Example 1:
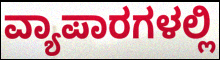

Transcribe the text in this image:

ವ್ಯಾಪಾರಗಳಲ್ಲಿ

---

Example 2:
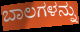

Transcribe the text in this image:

ಬಾಲಗಳನ್ನು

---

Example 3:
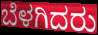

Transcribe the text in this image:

ಬೆಳಗಿದರು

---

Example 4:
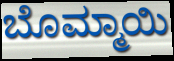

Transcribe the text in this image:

ಬೊಮ್ಮಾಯಿ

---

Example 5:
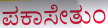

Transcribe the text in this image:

ಪಕಾಸೇತುಂ